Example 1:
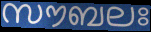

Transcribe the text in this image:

സൗബലഃ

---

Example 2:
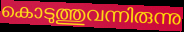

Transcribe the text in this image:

കൊടുത്തുവന്നിരുന്നു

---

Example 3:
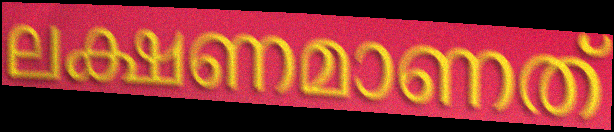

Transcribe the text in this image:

ലക്ഷണമാണത്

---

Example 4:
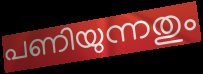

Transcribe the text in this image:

പണിയുന്നതും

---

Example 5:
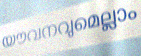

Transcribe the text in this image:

യൗവനവുമെല്ലാം